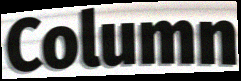
Column